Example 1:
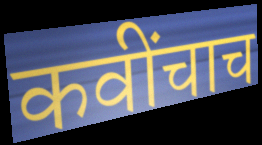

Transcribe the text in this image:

कवींचाच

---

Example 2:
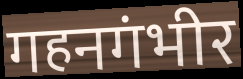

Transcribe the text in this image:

गहनगंभीर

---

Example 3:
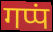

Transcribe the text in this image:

गप्पं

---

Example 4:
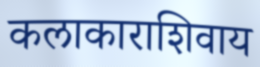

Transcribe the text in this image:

कलाकाराशिवाय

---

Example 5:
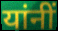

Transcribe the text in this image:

यांनीं